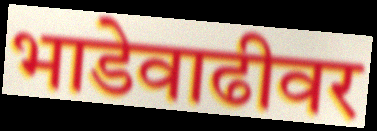
भाडेवाढीवर